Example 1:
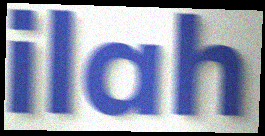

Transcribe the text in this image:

ilah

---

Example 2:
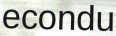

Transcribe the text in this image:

econdu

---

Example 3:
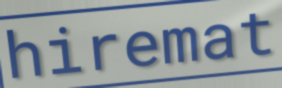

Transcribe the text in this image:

hiremat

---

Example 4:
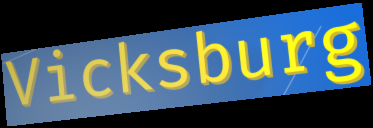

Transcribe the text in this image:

Vicksburg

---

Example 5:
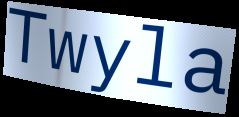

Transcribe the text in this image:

Twyla